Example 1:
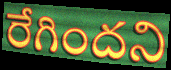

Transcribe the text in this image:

రేగిందని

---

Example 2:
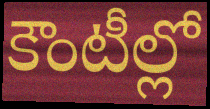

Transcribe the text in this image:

కౌంటీల్లో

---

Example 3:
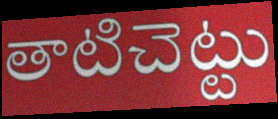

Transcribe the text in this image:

తాటిచెట్టు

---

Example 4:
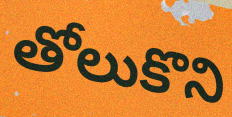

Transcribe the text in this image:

తోలుకొని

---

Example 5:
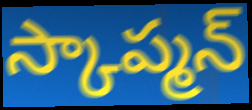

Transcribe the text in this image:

స్కాప్మన్